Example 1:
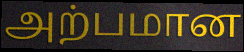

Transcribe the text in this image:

அற்பமான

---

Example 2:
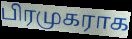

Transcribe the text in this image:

பிரமுகராக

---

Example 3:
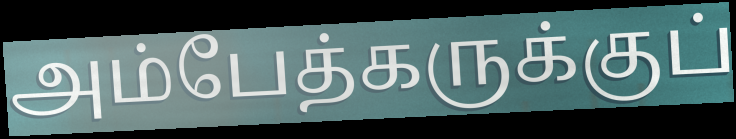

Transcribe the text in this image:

அம்பேத்கருக்குப்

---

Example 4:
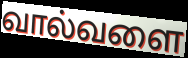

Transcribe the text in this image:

வால்வளை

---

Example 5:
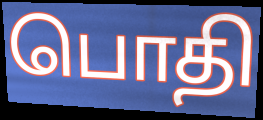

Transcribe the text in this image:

பொதி